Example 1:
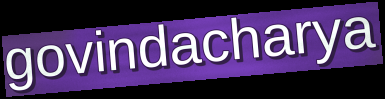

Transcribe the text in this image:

govindacharya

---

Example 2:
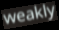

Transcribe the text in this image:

weakly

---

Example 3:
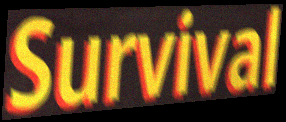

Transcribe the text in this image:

Survival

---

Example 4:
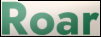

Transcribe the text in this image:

Roar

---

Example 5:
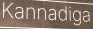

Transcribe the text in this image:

Kannadiga